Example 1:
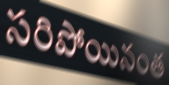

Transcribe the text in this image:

సరిపోయినంత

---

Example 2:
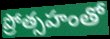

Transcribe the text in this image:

ప్రోత్సహంతో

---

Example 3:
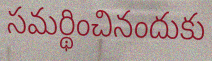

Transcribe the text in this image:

సమర్థించినందుకు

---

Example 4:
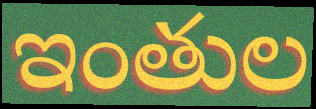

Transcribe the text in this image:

ఇంతుల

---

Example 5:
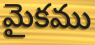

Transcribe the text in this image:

మైకము